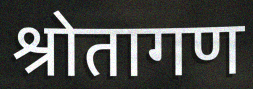
श्रोतागण